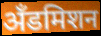
अँडमिशन